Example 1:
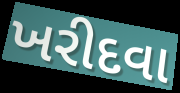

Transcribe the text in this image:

ખરીદવા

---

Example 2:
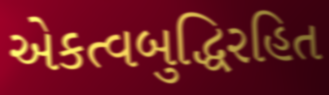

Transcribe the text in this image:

એકત્વબુદ્ધિરહિત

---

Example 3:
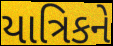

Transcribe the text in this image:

યાત્રિકને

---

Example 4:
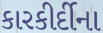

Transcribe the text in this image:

કારકીર્દીના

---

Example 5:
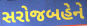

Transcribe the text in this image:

સરોજબહેને